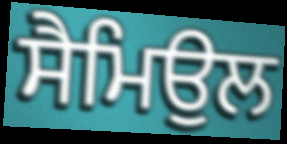
ਸੈਮਿਉਲ